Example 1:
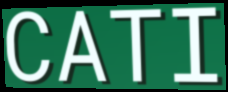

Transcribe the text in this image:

CATI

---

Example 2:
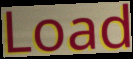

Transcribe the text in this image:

Load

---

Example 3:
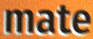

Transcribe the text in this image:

mate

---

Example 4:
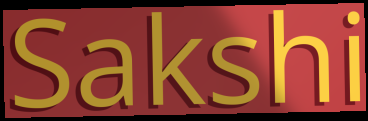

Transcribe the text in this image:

Sakshi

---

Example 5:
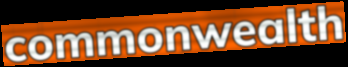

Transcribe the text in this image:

commonwealth